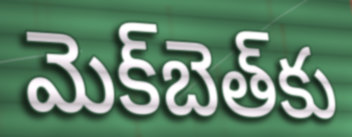
మెక్‌బెత్‌కు